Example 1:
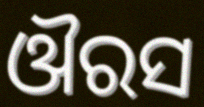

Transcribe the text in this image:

ଔରସ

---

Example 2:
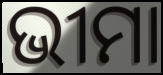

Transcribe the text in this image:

ଭୀମା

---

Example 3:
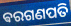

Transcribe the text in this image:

ଵରଗଣପତି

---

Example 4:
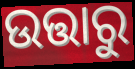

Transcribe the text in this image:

ଉତ୍ତାରୁ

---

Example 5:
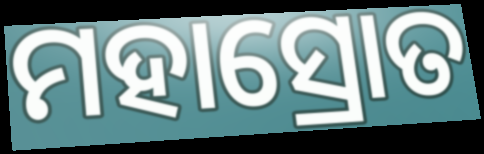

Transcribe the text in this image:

ମହାସ୍ରୋତ